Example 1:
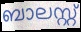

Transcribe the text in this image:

ബാലസ്റ്റ്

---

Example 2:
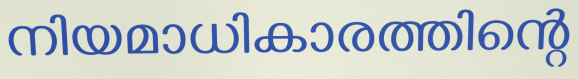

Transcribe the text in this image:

നിയമാധികാരത്തിന്റെ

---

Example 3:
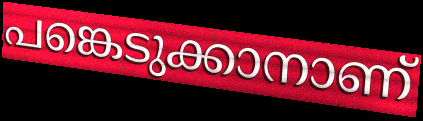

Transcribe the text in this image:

പങ്കെടുക്കാനാണ്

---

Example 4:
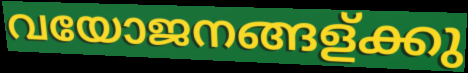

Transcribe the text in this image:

വയോജനങ്ങള്ക്കു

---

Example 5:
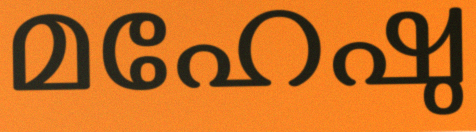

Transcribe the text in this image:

മഹേഷു